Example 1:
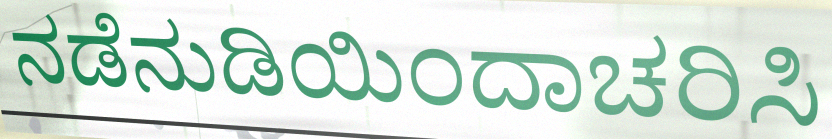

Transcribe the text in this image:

ನಡೆನುಡಿಯಿಂದಾಚರಿಸಿ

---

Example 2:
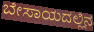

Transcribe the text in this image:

ಬೇಸಾಯದಲ್ಲಿನ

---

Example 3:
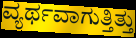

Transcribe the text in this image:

ವ್ಯರ್ಥವಾಗುತ್ತಿತ್ತು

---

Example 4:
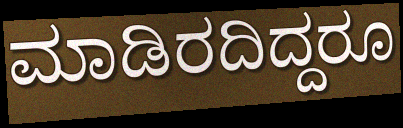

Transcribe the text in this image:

ಮಾಡಿರದಿದ್ದರೂ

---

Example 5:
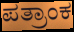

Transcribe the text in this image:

ಪತ್ರಾಂಕ